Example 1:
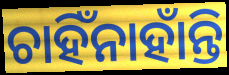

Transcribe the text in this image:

ଚାହିଁନାହାଁନ୍ତି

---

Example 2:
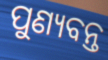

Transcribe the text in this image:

ପୁଣ୍ୟବନ୍ତ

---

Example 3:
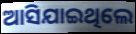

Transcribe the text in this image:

ଆସିଯାଇଥିଲେ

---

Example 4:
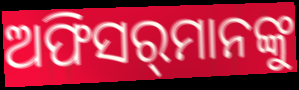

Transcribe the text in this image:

ଅଫିସର୍‌ମାନଙ୍କୁ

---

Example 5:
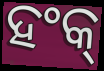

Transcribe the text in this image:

ହଂକ୍